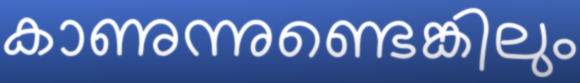
കാണുന്നുണ്ടെങ്കിലും